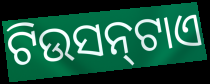
ଟିଉସନ୍‍ଟାଏ